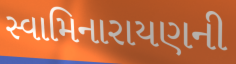
સ્વામિનારાયણની